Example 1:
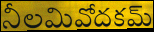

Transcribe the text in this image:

నీలమివోదకమ్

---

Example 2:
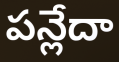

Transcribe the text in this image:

పన్లేదా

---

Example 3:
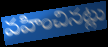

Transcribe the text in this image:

వహించినట్లు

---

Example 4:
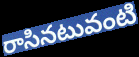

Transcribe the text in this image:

రాసినటువంటి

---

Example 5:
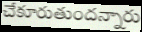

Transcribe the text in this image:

చేకూరుతుందన్నారు